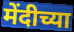
मेंदीच्या